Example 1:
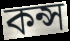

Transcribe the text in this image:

কন্স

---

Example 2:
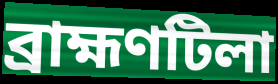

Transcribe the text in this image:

ব্রাহ্মণটিলা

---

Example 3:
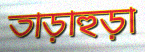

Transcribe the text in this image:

তাড়াহুড়া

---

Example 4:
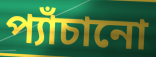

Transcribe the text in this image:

প্যাঁচানো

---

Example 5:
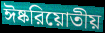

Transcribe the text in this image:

ঈষ্করিয়োতীয়